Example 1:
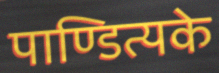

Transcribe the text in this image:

पाण्डित्यके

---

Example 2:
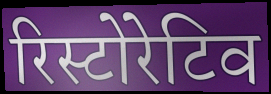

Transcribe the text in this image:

रिस्टोरेटिव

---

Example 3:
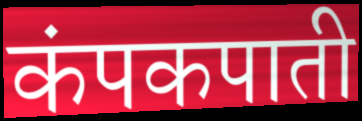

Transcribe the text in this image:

कंपकपाती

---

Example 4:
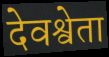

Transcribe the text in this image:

देवश्वेता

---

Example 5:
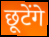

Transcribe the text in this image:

छूटेंगे